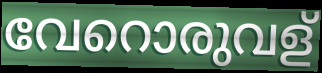
വേറൊരുവള്